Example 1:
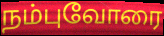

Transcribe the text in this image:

நம்புவோரை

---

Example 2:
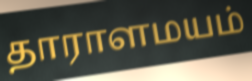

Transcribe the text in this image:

தாராளமயம்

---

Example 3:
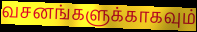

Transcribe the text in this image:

வசனங்களுக்காகவும்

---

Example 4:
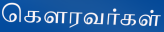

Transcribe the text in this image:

கௌரவர்கள்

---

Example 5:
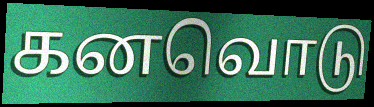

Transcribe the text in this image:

கனவொடு